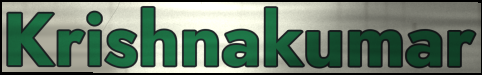
Krishnakumar